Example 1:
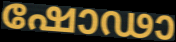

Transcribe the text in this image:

ഷോഢാ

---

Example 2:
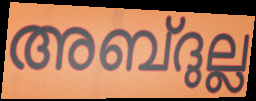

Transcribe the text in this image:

അബ്ദുല്ല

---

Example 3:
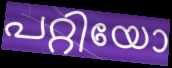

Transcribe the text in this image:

പറ്റിയോ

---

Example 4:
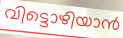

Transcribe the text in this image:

വിട്ടൊഴിയാൻ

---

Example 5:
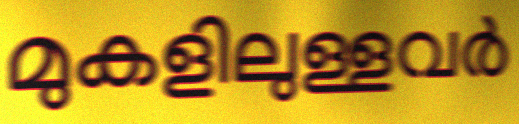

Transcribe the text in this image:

മുകളിലുള്ളവർ